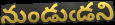
నుండుఁడని